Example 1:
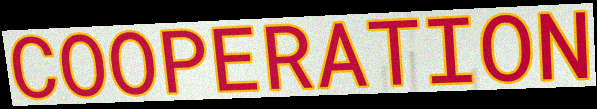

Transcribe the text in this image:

COOPERATION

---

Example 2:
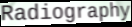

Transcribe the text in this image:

Radiography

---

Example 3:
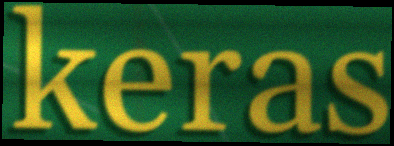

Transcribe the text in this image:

keras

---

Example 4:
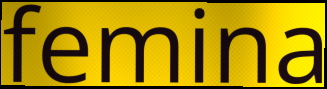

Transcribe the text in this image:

femina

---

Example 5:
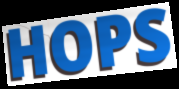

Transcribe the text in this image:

HOPS